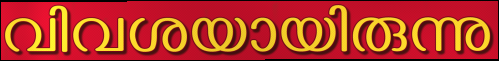
വിവശയായിരുന്നു